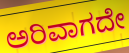
ಅರಿವಾಗದೇ